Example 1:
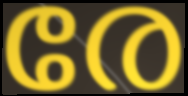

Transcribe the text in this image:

രേ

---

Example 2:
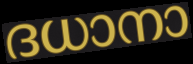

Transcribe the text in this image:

ദധാനാ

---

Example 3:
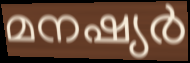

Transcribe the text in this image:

മനഷ്യർ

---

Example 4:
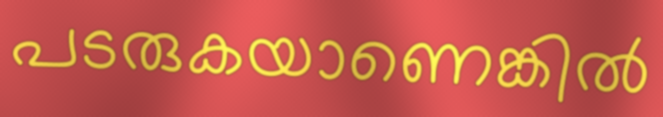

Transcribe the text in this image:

പടരുകയാണെങ്കിൽ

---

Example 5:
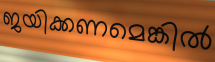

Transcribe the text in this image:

ജയിക്കണമെങ്കിൽ